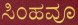
ಸಿಂಹವೂ